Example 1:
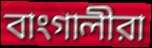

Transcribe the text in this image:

বাংগালীরা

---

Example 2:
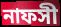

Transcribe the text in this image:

নাফসী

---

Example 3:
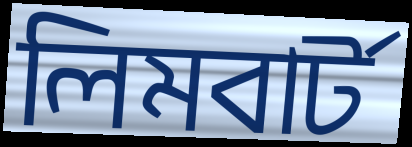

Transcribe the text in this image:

লিমবার্ট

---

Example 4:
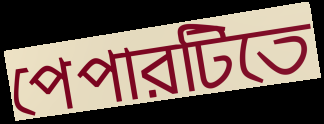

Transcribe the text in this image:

পেপারটিতে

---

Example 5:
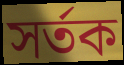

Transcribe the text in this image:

সর্তক